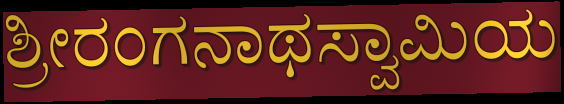
ಶ್ರೀರಂಗನಾಥಸ್ವಾಮಿಯ